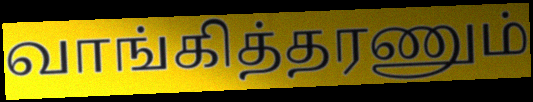
வாங்கித்தரணும்